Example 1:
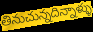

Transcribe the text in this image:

తినుచున్నదిన్నాళ్ళు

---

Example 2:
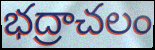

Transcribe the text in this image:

భద్రాచలం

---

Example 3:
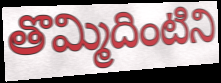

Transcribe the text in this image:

తొమ్మిదింటిని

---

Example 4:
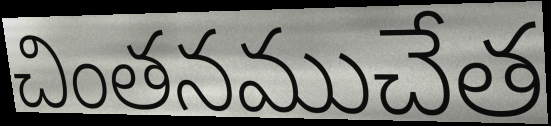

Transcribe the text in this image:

చింతనముచేత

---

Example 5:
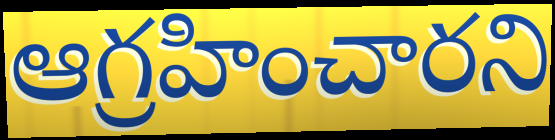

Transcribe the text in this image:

ఆగ్రహించారని